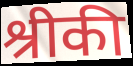
श्रीकी